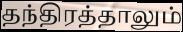
தந்திரத்தாலும்